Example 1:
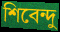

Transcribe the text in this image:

শিবেন্দু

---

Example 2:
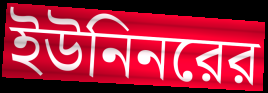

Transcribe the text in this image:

ইউনিনরের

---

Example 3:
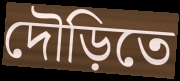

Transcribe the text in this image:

দৌড়িতে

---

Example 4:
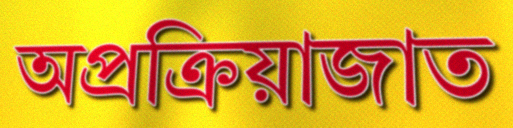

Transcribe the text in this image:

অপ্রক্রিয়াজাত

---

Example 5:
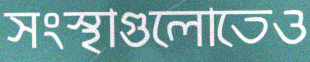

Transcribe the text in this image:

সংস্থাগুলোতেও